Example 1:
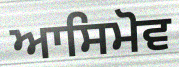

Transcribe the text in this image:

ਆਸਿਮੋਵ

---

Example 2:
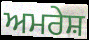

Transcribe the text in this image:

ਅਮਰੇਸ਼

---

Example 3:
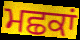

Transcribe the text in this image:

ਮਛਕਾਂ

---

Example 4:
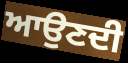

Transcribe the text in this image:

ਆਉਣਦੀ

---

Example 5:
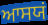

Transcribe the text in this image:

ਆਸਯਂ